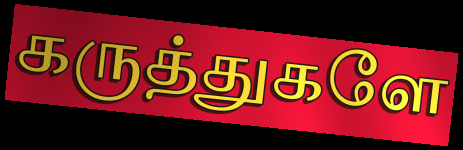
கருத்துகளே